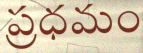
ప్రధమం